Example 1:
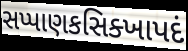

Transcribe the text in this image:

સપ્પાણકસિક્ખાપદં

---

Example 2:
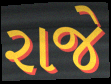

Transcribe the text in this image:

રાજે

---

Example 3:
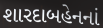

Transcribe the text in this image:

શારદાબહેનનાં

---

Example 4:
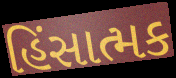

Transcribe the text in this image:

હિંસાત્મક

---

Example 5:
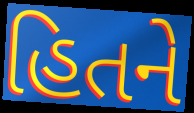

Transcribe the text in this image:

હિતને